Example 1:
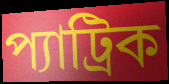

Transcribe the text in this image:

প্যাট্রিক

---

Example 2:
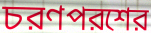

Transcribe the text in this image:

চরণপরশের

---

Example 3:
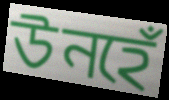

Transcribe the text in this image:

উনহেঁ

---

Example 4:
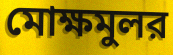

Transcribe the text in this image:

মোক্ষমুলর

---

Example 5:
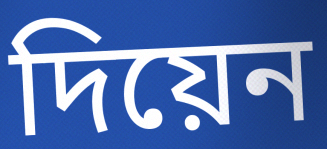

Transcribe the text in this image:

দিয়েন